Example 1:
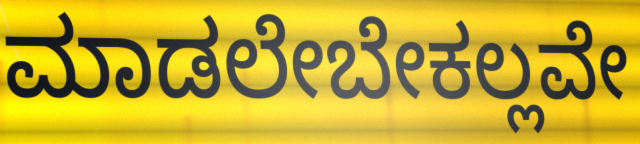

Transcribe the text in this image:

ಮಾಡಲೇಬೇಕಲ್ಲವೇ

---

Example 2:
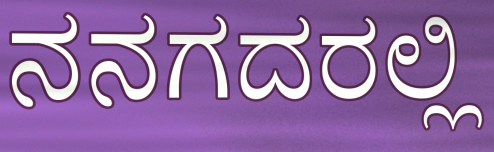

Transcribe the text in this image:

ನನಗದರಲ್ಲಿ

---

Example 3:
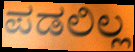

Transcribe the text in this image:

ಪಡಲಿಲ್ಲ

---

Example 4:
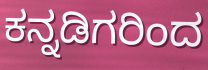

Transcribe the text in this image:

ಕನ್ನಡಿಗರಿಂದ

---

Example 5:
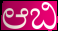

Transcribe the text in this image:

ಆಬಿ